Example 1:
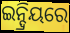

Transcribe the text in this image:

ଇନ୍ଦ୍ରିୟରେ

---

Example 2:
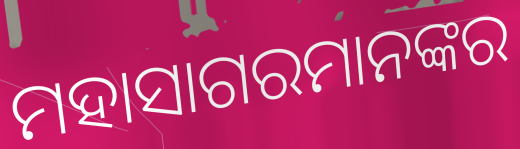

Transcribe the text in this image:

ମହାସାଗରମାନଙ୍କର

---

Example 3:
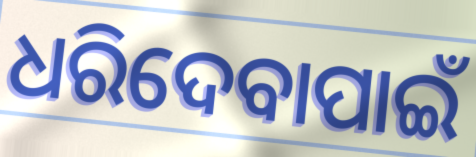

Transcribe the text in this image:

ଧରିଦେବାପାଇଁ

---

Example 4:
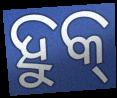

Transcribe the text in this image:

ହୁକ୍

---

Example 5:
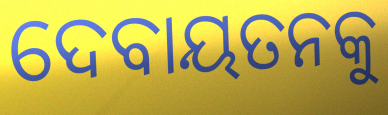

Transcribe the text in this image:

ଦେବାୟତନକୁ